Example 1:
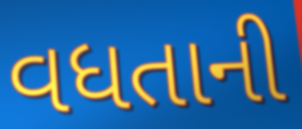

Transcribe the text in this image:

વધતાની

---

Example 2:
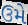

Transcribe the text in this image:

ઉમે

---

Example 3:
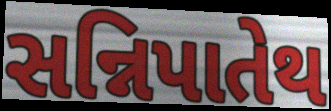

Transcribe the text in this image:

સન્નિપાતેથ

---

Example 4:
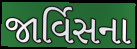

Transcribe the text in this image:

જાર્વિસના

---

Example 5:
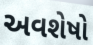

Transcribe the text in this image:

અવશેષો